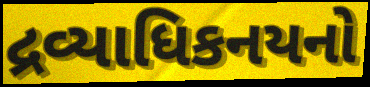
દ્રવ્યાધિકનયનો